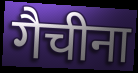
गैचीना